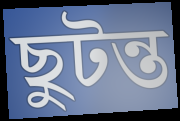
ছুটন্ত